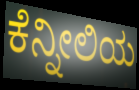
ಕೆನ್ನೀಲಿಯ